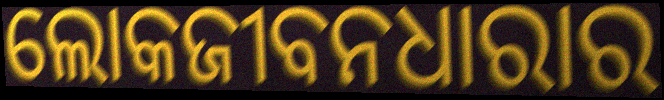
ଲୋକଜୀବନଧାରାର